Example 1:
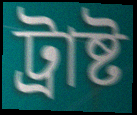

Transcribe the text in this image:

ট্ৰাষ্ট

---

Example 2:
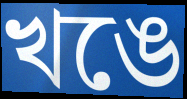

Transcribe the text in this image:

খঙে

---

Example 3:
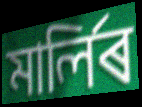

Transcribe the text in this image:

মাৰ্লিৰ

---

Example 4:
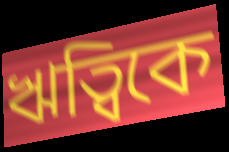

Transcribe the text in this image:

ঋত্বিকে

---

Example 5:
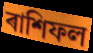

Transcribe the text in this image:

ৰাশিফল